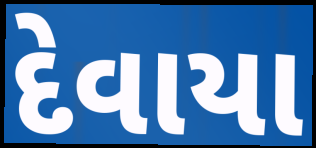
દેવાયા